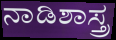
ನಾಡಿಶಾಸ್ತ್ರ